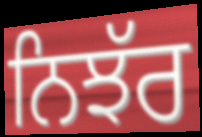
ਨਿਝੱਰ